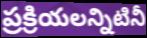
ప్రక్రియలన్నిటినీ